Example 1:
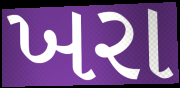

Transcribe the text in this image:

ખરા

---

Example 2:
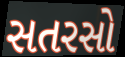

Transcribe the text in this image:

સતરસો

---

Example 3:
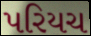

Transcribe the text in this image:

પરિયચ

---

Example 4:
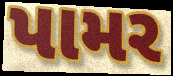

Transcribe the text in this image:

પામર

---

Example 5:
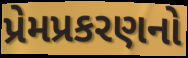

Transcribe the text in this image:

પ્રેમપ્રકરણનો